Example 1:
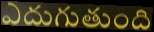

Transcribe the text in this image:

ఎదుగుతుంది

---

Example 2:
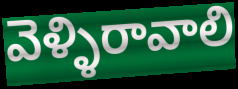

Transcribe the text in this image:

వెళ్ళిరావాలి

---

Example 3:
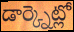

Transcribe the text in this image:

డార్క్నెట్లో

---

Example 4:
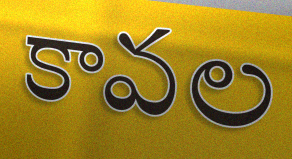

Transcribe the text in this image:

కావల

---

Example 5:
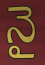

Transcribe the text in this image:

నై